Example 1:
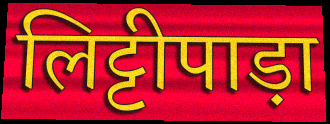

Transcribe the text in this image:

लिट्टीपाड़ा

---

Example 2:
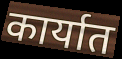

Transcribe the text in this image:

कार्यात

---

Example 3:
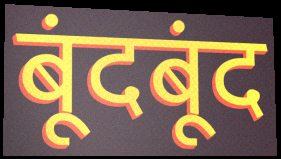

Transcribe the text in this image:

बूंदबूंद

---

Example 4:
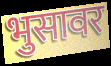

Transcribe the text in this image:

भुसावर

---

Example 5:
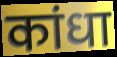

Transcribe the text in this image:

कांधा